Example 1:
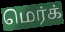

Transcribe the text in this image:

மெர்க்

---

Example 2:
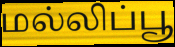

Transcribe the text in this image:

மல்லிப்பூ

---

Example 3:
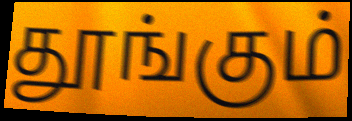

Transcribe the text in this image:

தூங்கும்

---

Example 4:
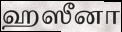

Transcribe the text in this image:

ஹஸீனா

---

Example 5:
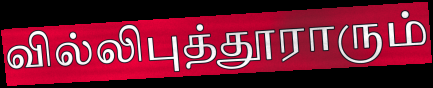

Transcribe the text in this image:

வில்லிபுத்தூராரும்